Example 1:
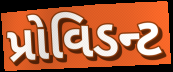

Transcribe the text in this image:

પ્રોવિડન્ટ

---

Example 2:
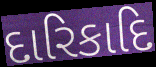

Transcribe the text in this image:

દારિકાદિ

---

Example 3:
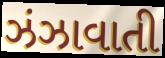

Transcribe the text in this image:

ઝંઝાવાતી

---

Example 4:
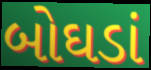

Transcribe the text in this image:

બોઘડાં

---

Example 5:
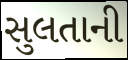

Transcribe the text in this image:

સુલતાની